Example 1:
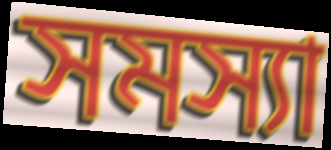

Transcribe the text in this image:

সমস্যা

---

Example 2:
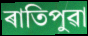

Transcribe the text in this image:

ৰাতিপুৱা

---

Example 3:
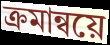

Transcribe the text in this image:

ক্ৰমান্বয়ে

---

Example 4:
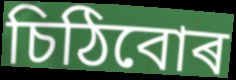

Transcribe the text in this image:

চিঠিবোৰ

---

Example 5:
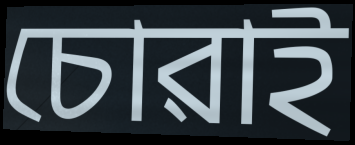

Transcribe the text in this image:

চোৱাই